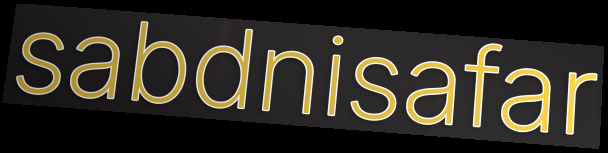
sabdnisafar